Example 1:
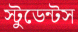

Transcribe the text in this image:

স্টুডেন্টস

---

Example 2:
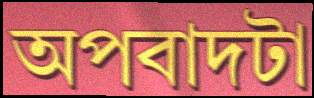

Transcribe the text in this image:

অপবাদটা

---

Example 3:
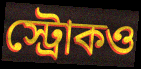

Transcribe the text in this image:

স্ট্রোকও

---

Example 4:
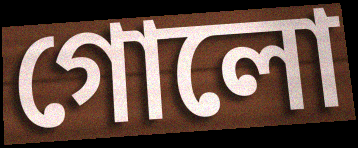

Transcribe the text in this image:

গোলো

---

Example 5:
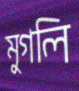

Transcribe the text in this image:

মুগলি